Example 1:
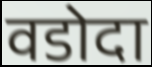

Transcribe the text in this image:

वडोदा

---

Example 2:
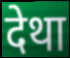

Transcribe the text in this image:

देथा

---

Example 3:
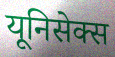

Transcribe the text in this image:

यूनिसेक्स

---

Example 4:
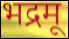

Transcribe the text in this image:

भद्रमू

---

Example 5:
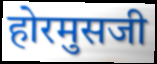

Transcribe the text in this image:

होरमुसजी